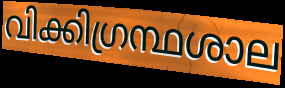
വിക്കിഗ്രന്ഥശാല